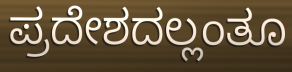
ಪ್ರದೇಶದಲ್ಲಂತೂ